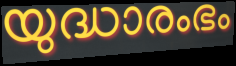
യുദ്ധാരംഭം